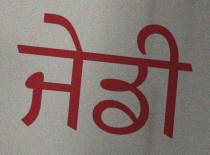
ਜੇਡੀ